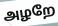
அழறே